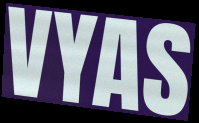
VYAS